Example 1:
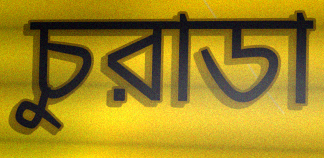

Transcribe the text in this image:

চুরাডা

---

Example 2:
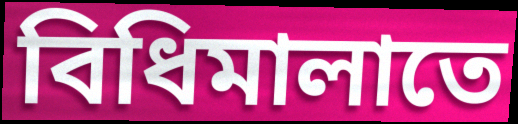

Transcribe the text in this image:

বিধিমালাতে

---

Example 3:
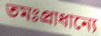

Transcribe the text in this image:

তমঃপ্রাধান্যে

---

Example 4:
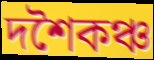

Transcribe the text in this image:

দশৈকঞ্চ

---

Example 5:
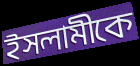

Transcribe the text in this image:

ইসলামীকে